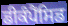
ਡੀਕੰਪੈਂਸਿਡ